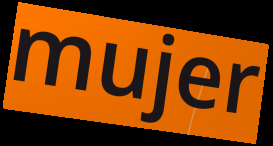
mujer